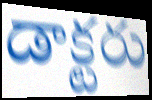
డాక్టరు